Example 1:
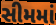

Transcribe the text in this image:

સીમમાં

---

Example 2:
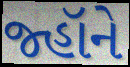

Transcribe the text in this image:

જ્હૉને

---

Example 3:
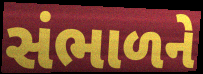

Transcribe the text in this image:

સંભાળને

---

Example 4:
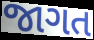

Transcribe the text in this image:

જાગત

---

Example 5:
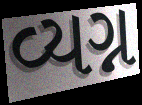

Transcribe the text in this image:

વ્યગ્ન